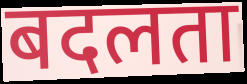
बदलता